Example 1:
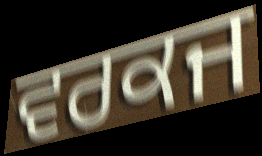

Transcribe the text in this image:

ਵਰਕਜ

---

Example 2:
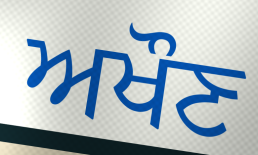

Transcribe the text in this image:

ਅਖੌਣ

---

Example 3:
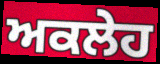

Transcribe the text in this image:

ਅਕਲੇਹ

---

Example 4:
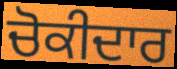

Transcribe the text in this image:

ਚੋਕੀਦਾਰ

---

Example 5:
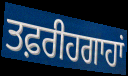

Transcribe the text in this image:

ਤਫ਼ਰੀਹਗਾਹਾਂ